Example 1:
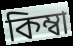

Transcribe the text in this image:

কিম্বা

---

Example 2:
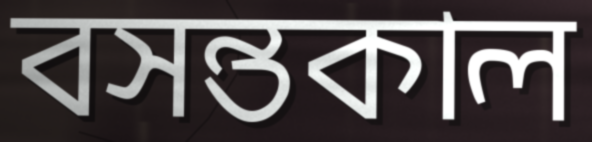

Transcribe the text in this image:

বসন্তকাল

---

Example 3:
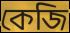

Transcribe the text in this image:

কেজি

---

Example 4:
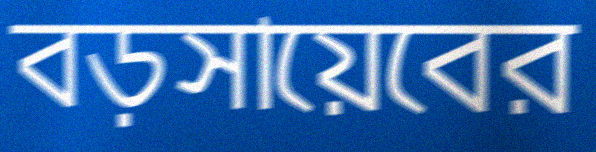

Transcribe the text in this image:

বড়সায়েবের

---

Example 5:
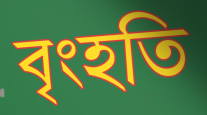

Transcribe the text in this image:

বৃংহতি